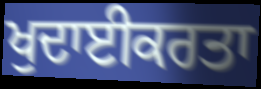
ਖੁਦਾਈਕਰਤਾ